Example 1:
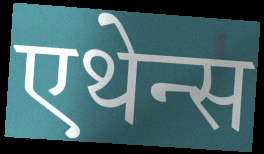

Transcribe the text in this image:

एथेन्स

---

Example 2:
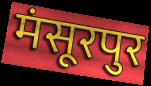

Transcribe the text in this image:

मंसूरपुर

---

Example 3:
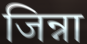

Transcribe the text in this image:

जिन्ना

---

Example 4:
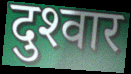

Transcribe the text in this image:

दुश्‍वार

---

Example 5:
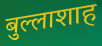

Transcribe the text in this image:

बुल्लाशाह